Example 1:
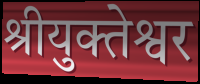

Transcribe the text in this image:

श्रीयुक्तेश्वर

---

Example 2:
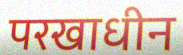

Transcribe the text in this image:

परखाधीन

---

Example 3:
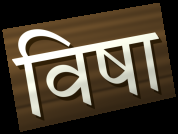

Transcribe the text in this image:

विषा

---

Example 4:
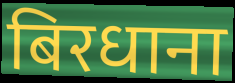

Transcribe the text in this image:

बिरधाना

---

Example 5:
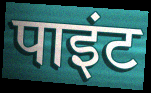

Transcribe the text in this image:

पाइंट